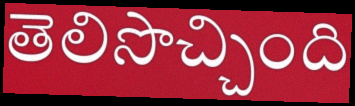
తెలిసొచ్చింది